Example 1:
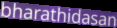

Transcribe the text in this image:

bharathidasan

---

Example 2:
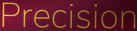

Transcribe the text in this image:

Precision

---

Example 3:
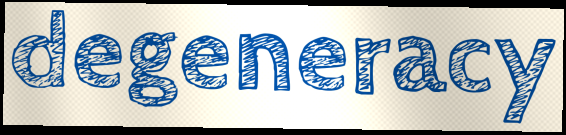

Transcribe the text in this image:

degeneracy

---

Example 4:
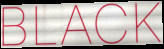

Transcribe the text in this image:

BLACK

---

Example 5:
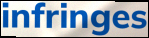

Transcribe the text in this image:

infringes